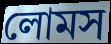
লোমস